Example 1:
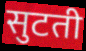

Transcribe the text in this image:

सुटती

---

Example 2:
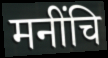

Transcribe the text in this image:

मनींचि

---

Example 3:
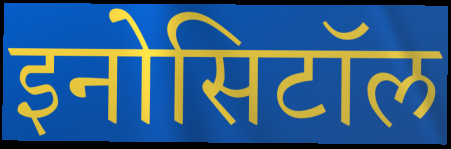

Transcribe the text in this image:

इनोसिटॉल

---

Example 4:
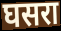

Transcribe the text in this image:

घसरा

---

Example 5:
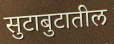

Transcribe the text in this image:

सुटाबुटातील